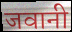
जवानी